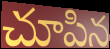
చూపిన